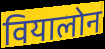
वियालोन